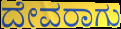
ದೇವರಾಗು